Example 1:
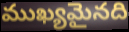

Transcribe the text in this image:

ముఖ్యమైనది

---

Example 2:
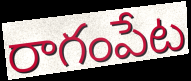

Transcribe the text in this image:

రాగంపేట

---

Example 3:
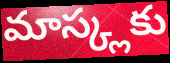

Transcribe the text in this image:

మాస్క్లకు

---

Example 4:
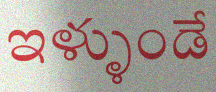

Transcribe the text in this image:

ఇళ్ళుండే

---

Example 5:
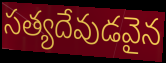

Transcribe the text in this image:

సత్యదేవుడవైన